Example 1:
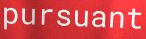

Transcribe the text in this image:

pursuant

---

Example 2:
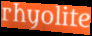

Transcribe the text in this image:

rhyolite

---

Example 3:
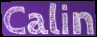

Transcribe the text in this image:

Calin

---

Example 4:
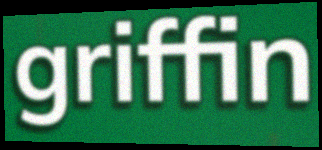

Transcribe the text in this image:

griffin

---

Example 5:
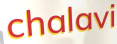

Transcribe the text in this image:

chalavi